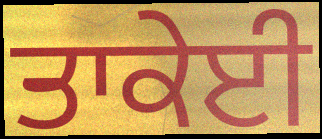
ਤਾਕੇਈ